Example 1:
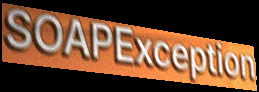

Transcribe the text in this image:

SOAPException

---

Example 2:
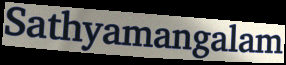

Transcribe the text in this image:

Sathyamangalam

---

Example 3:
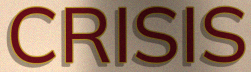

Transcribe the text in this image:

CRISIS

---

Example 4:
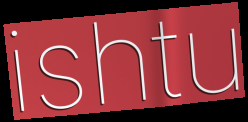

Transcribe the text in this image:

ishtu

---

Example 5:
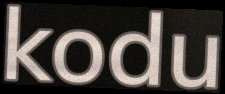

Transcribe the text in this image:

kodu